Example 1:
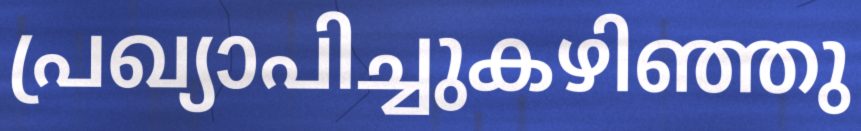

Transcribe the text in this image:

പ്രഖ്യാപിച്ചുകഴിഞ്ഞു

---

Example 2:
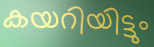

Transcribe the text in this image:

കയറിയിട്ടും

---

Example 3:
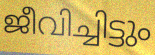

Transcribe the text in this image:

ജീവിച്ചിട്ടും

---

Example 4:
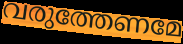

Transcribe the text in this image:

വരുത്തേണമേ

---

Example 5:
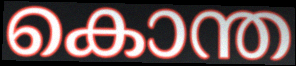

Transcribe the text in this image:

കൊന്ത